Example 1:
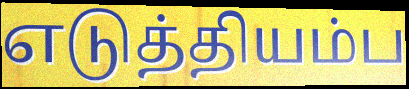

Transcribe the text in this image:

எடுத்தியம்ப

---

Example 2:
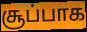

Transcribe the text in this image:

சூப்பாக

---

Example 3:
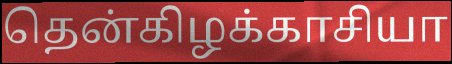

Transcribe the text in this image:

தென்கிழக்காசியா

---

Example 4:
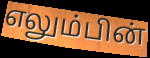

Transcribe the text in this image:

எலும்பின்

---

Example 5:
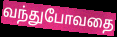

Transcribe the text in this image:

வந்துபோவதை